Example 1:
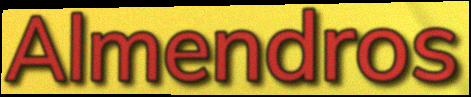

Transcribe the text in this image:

Almendros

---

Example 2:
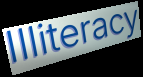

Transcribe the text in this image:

Illiteracy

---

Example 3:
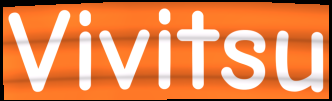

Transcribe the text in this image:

Vivitsu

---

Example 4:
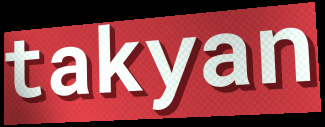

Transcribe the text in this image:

takyan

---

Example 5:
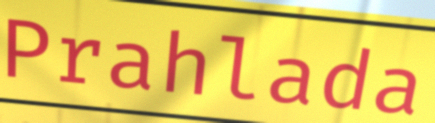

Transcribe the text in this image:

Prahlada